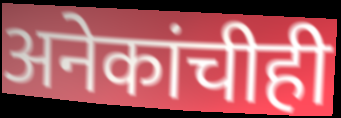
अनेकांचीही